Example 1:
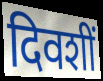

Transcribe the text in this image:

दिवशीं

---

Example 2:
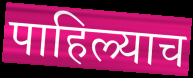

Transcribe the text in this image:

पाहिल्याच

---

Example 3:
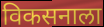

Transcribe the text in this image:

विकसनाला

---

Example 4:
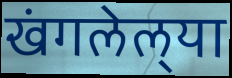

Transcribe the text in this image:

खंगलेल्या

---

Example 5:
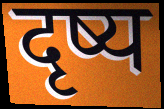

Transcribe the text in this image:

दृष्य